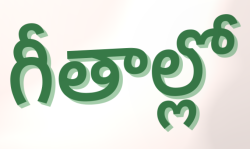
గీతాల్లో